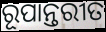
ରୂପାନ୍ତରୀତ